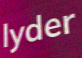
lyder